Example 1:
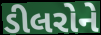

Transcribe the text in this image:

ડીલરોને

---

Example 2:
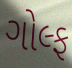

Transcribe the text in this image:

ગોલ્ફ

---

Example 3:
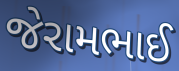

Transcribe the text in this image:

જેરામભાઈ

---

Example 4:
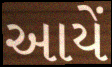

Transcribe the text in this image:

આયેં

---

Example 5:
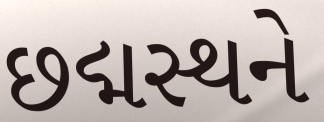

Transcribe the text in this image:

છદ્મસ્થને